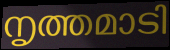
നൃത്തമാടി